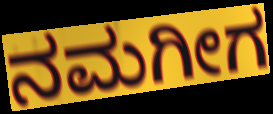
ನಮಗೀಗ